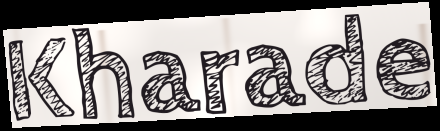
Kharade